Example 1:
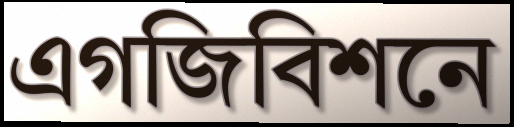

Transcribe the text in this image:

এগজিবিশনে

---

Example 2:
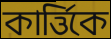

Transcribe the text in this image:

কার্ত্তিকে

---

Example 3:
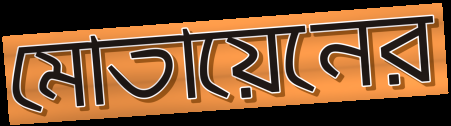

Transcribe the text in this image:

মোতায়েনের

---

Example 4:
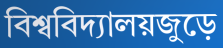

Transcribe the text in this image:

বিশ্ববিদ্যালয়জুড়ে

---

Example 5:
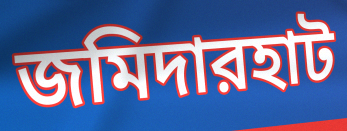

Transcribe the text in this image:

জমিদারহাট